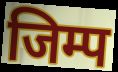
जिम्प